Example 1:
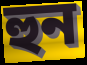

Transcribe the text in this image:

হুন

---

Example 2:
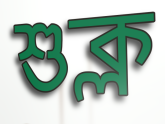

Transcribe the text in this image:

শুক্ল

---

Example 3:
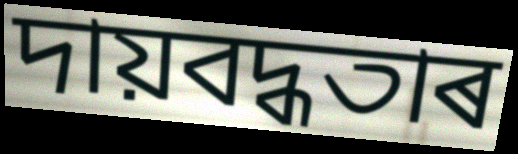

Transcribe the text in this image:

দায়বদ্ধতাৰ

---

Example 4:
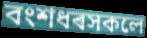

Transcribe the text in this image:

বংশধৰসকলে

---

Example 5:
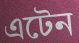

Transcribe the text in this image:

এটেন